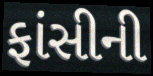
ફાંસીની